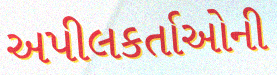
અપીલકર્તાઓની